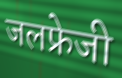
जलफ्रेजी